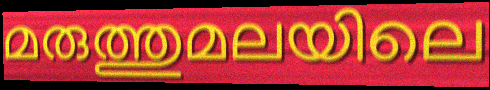
മരുത്തുമലയിലെ